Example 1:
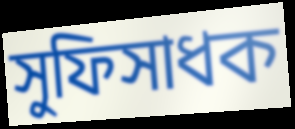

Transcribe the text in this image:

সুফিসাধক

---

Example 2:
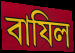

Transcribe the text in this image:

বাযিল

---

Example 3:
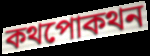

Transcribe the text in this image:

কথপোকথন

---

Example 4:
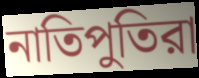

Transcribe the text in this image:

নাতিপুতিরা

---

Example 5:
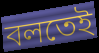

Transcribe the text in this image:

বলতেই